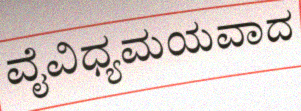
ವೈವಿಧ್ಯಮಯವಾದ